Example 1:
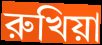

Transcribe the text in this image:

রুখিয়া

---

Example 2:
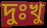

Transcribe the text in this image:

দুঃখু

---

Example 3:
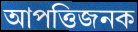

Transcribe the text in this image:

আপত্তিজনক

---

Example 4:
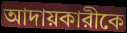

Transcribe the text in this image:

আদায়কারীকে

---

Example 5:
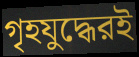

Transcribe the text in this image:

গৃহযুদ্ধেরই